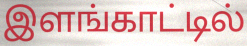
இளங்காட்டில்